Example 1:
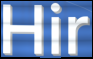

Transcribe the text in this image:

Hir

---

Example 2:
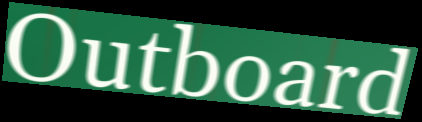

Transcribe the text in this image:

Outboard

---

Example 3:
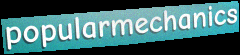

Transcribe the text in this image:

popularmechanics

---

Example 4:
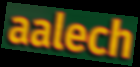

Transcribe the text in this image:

aalech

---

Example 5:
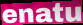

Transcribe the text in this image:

enatu